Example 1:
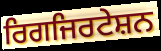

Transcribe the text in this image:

ਰਿਗਜਿਰਟੇਸ਼ਨ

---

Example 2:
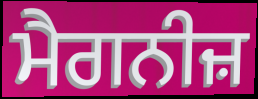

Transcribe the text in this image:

ਮੈਗਨੀਜ਼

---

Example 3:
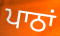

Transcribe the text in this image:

ਪਾਠਾਂ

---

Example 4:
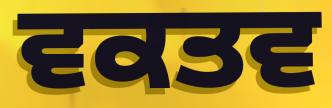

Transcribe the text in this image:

ਵਕਤਵ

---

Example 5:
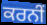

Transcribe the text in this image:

ਕਰਨੀਂ